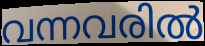
വന്നവരിൽ